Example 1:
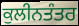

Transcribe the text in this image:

ਕੁਲੀਨਤੰਤਰ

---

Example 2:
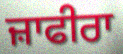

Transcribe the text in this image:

ਜ਼ਾਫੀਰਾ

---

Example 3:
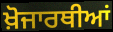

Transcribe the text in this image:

ਖ਼ੋਜਾਰਥੀਆਂ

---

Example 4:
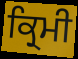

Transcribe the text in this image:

ਕ੍ਰਿਮੀ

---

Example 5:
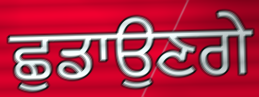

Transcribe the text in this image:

ਛੁਡਾਉਣਗੇ